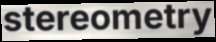
stereometry